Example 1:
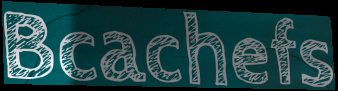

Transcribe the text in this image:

Bcachefs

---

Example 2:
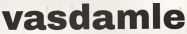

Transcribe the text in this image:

vasdamle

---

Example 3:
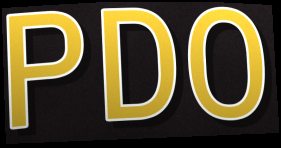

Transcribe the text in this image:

PDO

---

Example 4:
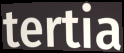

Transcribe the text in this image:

tertia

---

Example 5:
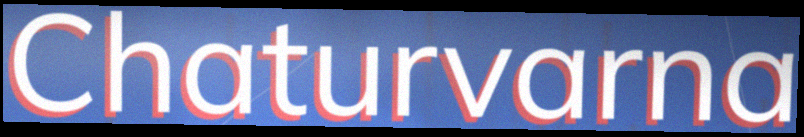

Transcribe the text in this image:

Chaturvarna